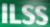
ILSS